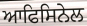
ਆਫਿਸਿਨੇਲ